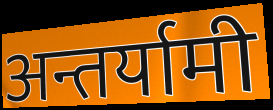
अन्‍तर्यामी